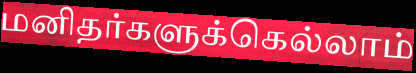
மனிதர்களுக்கெல்லாம்